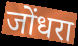
जोंधरा